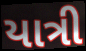
યાત્રી